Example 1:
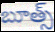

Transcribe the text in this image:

బూత్స్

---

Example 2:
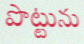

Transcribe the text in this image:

పొట్టును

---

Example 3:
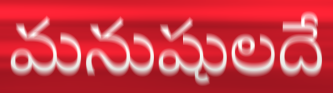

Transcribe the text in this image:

మనుషులదే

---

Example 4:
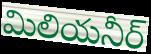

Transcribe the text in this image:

మిలియనీర్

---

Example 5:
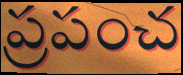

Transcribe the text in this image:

ప్రపంచ